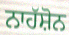
ਨਾਹੱਸ਼ੋਨ